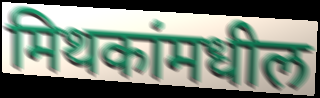
मिथकांमधील